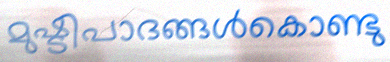
മുഷ്ടിപാദങ്ങൾകൊണ്ടു